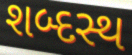
શબ્દસ્થ